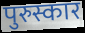
पुरुस्‍कार